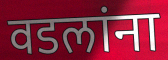
वडलांना